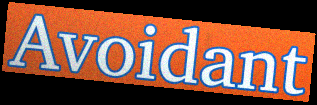
Avoidant